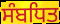
ਸੰਬਧਿਤ